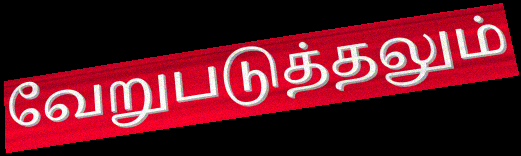
வேறுபடுத்தலும்